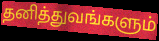
தனித்துவங்களும்